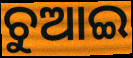
ଚୁଆଇ